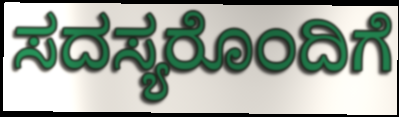
ಸದಸ್ಯರೊಂದಿಗೆ